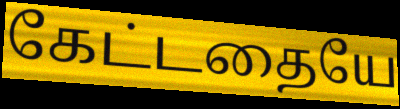
கேட்டதையே